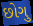
છોગુ